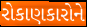
રોકાણકારોને